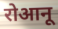
रोआनू